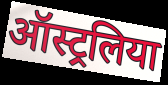
ऑस्ट्रलिया